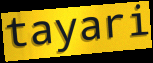
tayari